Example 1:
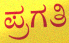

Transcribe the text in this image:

ಪ್ರಗತಿ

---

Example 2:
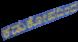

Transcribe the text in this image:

ಕಡುಕೋಪದಿಂದ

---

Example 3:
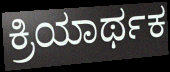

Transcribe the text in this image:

ಕ್ರಿಯಾರ್ಥಕ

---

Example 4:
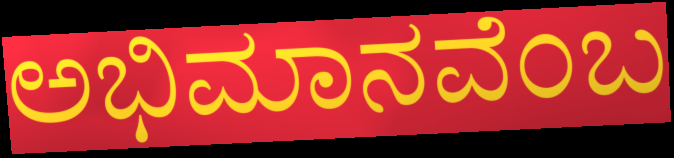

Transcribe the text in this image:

ಅಭಿಮಾನವೆಂಬ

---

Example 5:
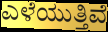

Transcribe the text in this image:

ಎಳೆಯುತ್ತಿವೆ